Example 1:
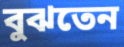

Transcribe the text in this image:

বুঝতেন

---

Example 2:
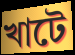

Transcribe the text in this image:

খাটে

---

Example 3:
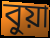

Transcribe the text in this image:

বুয়া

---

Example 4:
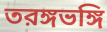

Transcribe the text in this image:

তরঙ্গভঙ্গি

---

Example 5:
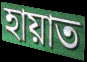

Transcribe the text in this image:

হায়াত